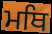
ਮਥਿ